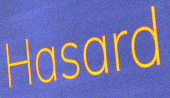
Hasard